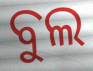
ବୁଲ